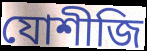
যোশীজি